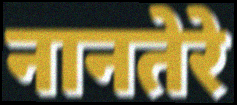
नानतेरे